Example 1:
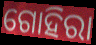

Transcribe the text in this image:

ଗୋହିରା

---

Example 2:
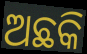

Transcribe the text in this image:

ଅଛକି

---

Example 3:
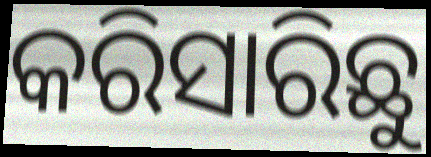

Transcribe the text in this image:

କରିସାରିଛୁ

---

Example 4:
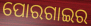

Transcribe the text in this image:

ପୋରଗାଇର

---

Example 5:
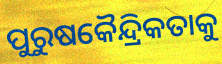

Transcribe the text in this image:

ପୁରୁଷକୈନ୍ଦ୍ରିକତାକୁ